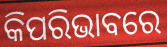
କିପରିଭାବରେ